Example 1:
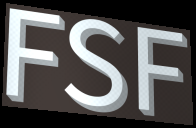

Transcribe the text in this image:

FSF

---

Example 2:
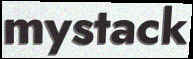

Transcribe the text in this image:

mystack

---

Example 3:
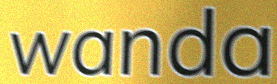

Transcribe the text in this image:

wanda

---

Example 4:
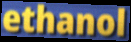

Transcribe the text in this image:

ethanol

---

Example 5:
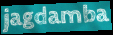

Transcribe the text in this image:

jagdamba